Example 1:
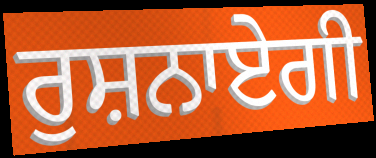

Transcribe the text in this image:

ਰੁਸ਼ਨਾਏਗੀ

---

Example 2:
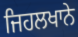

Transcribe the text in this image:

ਜਿਹਲਖਾਨੇ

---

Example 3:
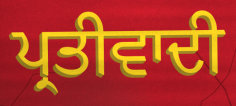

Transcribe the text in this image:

ਪ੍ਰਤੀਵਾਦੀ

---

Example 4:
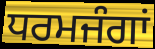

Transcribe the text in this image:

ਧਰਮਜੰਗਾਂ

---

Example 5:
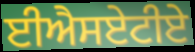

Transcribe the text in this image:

ਈਐਸਏਟੀਏ